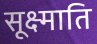
सूक्ष्माति